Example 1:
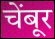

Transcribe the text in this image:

चेंबूर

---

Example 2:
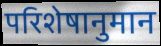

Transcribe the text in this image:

परिशेषानुमान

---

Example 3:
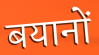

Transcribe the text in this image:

बयानों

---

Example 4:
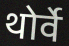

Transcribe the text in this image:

थोर्वे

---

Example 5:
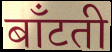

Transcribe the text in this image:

बाँटती